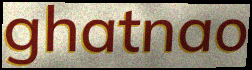
ghatnao